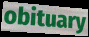
obituary